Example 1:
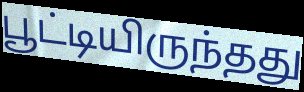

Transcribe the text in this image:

பூட்டியிருந்தது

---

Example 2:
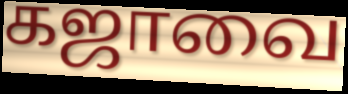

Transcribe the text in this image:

கஜாவை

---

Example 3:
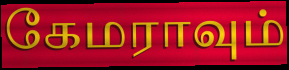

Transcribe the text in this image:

கேமராவும்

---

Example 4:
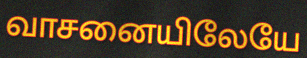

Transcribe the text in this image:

வாசனையிலேயே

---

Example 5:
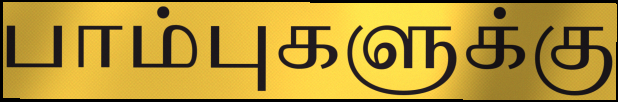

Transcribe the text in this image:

பாம்புகளுக்கு